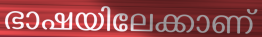
ഭാഷയിലേക്കാണ്